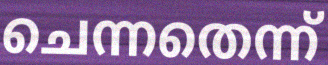
ചെന്നതെന്ന്